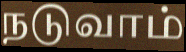
நடுவாம்